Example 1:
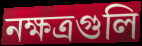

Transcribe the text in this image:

নক্ষত্রগুলি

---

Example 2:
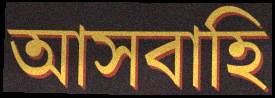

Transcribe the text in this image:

আসবাহি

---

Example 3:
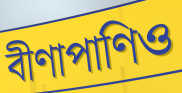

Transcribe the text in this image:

বীণাপাণিও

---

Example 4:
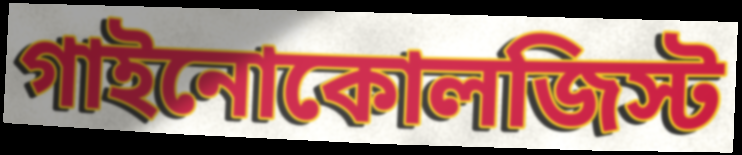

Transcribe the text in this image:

গাইনোকোলজিস্ট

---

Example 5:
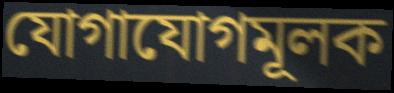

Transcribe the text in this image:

যোগাযোগমূলক